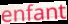
enfant